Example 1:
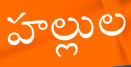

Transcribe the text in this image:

హల్లుల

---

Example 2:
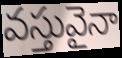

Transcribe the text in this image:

వస్తువైనా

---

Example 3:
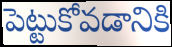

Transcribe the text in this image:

పెట్టుకోవడానికి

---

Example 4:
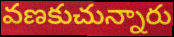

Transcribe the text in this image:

వణకుచున్నారు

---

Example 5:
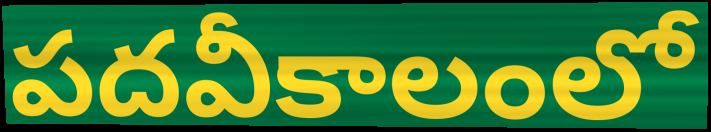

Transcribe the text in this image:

పదవీకాలంలో